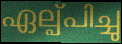
ഏല്പ്പിച്ചു